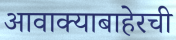
आवाक्याबाहेरची